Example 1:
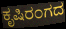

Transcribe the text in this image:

ಕೃಷಿರಂಗದ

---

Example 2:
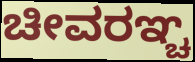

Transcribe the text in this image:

ಚೀವರಞ್ಚ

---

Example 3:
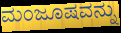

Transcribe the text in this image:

ಮಂಜೂಷವನ್ನು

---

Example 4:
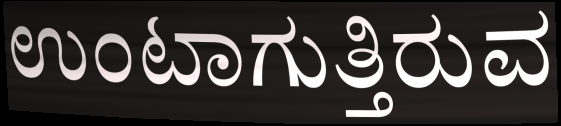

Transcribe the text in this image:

ಉಂಟಾಗುತ್ತಿರುವ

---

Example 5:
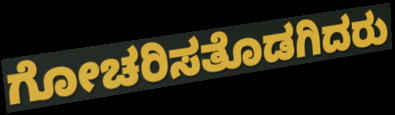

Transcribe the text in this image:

ಗೋಚರಿಸತೊಡಗಿದರು